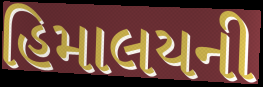
હિમાલયની